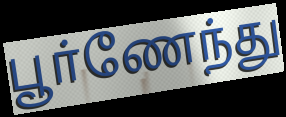
பூர்ணேந்து